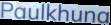
Paulkhuna